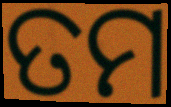
ତମ